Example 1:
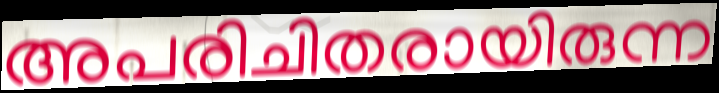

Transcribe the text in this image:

അപരിചിതരായിരുന്ന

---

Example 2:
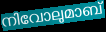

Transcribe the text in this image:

നിവോലുമാബ്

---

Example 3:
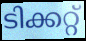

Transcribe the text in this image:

ടിക്കറ്റ്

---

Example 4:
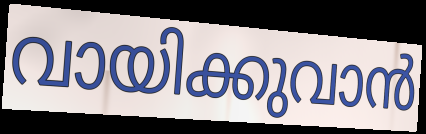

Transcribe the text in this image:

വായിക്കുവാൻ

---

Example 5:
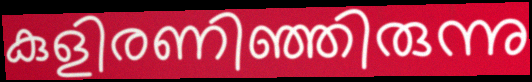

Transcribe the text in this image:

കുളിരണിഞ്ഞിരുന്നു